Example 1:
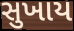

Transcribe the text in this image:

સુખાય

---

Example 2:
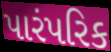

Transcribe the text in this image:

પારંપરિક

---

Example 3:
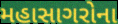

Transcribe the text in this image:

મહાસાગરોના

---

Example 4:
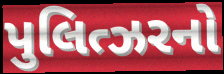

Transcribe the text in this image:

પુલિત્ઝરનો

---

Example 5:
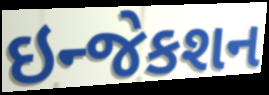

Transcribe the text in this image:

ઇન્જેકશન